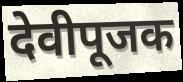
देवीपूजक